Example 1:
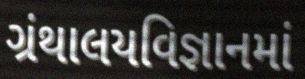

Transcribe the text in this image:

ગ્રંથાલયવિજ્ઞાનમાં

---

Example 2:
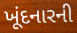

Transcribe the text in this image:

ખૂંદનારની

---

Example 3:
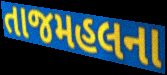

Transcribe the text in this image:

તાજમહલના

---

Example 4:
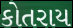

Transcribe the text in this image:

કોતરાય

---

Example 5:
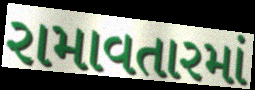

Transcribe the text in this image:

રામાવતારમાં